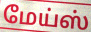
மேய்ஸ்